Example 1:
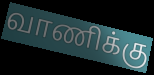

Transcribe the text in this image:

வாணிக்கு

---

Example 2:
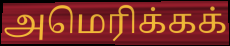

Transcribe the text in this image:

அமெரிக்கக்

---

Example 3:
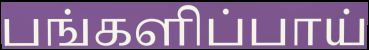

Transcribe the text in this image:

பங்களிப்பாய்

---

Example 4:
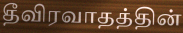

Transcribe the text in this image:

தீவிரவாதத்தின்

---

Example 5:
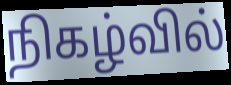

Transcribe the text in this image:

நிகழ்வில்